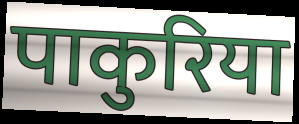
पाकुरिया